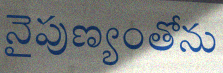
నైపుణ్యంతోను